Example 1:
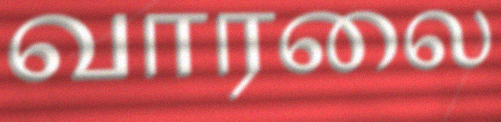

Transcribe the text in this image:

வாரலை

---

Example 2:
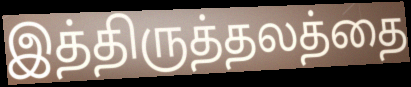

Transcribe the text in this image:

இத்திருத்தலத்தை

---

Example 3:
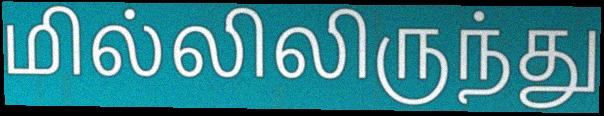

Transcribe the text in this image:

மில்லிலிருந்து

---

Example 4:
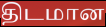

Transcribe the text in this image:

திடமான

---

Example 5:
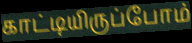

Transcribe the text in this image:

காட்டியிருப்போம்